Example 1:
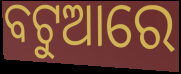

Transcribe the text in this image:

ବଟୁଆରେ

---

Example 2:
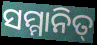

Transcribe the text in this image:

ସମ୍ମାନିତ୍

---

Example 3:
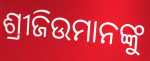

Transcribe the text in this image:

ଶ୍ରୀଜିଉମାନଙ୍କୁ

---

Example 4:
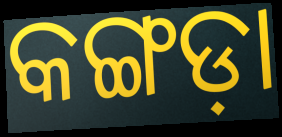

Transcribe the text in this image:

କଙ୍ଗଡ଼ା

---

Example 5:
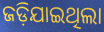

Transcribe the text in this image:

ଜଡ଼ିଯାଇଥିଲା